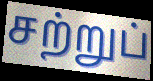
சற்றுப்